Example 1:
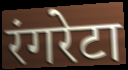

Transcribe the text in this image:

रंगरेटा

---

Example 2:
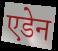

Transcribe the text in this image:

एडेन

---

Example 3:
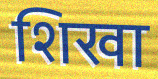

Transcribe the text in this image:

शिखा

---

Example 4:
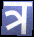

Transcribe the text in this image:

त्र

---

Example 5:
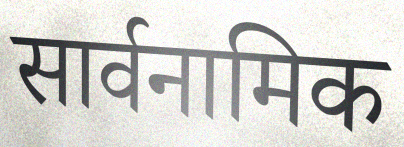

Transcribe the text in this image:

सार्वनामिक